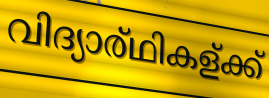
വിദ്യാര്ഥികള്ക്ക്